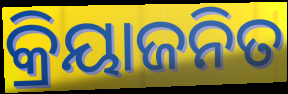
କ୍ରିୟାଜନିତ